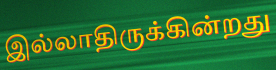
இல்லாதிருக்கின்றது